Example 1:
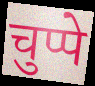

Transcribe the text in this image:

चुप्पे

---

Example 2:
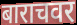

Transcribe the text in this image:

बाराचवर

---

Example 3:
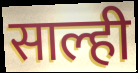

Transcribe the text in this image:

साल्ही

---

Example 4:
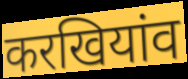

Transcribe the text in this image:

करखियांव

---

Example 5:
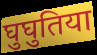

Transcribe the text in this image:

घुघुतिया